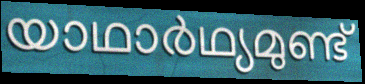
യാഥാർഥ്യമുണ്ട്